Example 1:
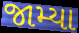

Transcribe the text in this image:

જામ્યા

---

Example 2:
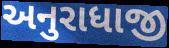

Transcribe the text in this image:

અનુરાધાજી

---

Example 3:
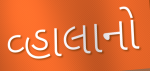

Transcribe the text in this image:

વ્હાલાનો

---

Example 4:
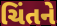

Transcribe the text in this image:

ચિંતને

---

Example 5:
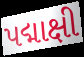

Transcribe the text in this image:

પદ્માક્ષી